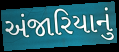
અંજારિયાનું